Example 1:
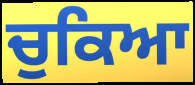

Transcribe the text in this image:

ਚੁਕਿਆ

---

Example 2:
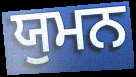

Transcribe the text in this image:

ਯੁਮਨ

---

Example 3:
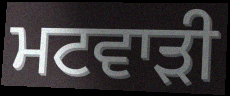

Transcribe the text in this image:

ਮਟਵਾੜੀ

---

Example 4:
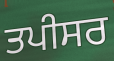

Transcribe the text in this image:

ਤਪੀਸਰ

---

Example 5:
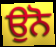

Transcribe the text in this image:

ਉਨੋ